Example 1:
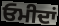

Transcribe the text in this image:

ਓਮੀਦਾਂ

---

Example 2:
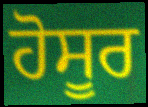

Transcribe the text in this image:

ਹੋਸੂਰ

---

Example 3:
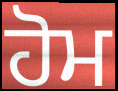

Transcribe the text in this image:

ਹੋਮ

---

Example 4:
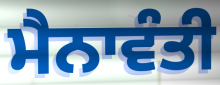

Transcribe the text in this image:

ਮੈਨਾਵੰਤੀ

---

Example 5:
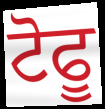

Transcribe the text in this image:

ਟੋਫੂ